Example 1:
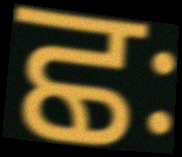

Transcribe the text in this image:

ਛਃ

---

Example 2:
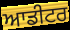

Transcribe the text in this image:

ਆਡੀਟਰ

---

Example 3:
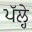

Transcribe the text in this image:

ਪੱਲ੍ਹੇ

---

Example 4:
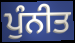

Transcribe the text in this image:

ਪੁੰਨੀਤ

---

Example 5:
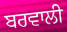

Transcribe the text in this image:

ਬਰਵਾਲੀ